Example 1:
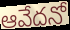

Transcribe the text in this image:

ఆవేదనో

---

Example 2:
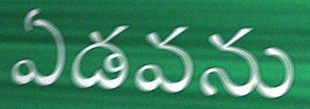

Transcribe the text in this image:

ఏడవను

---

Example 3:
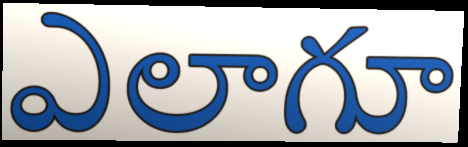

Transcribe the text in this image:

ఎలాగూ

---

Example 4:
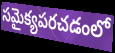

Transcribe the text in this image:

సమైక్యపరచడంలో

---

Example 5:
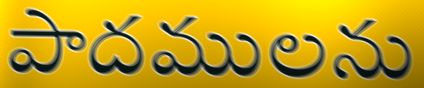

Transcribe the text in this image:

పాదములను